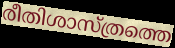
രീതിശാസ്ത്രത്തെ